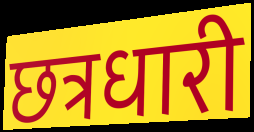
छत्रधारी